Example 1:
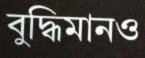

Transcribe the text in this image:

বুদ্ধিমানও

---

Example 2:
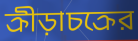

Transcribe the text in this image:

ক্রীড়াচক্রের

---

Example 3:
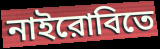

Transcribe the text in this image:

নাইরোবিতে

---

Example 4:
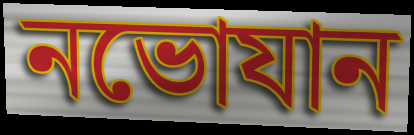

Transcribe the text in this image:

নভোযান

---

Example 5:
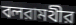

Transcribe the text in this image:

বলরামথীর